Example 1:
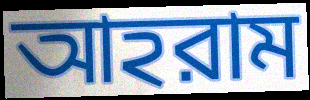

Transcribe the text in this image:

আহরাম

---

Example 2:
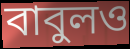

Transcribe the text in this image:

বাবুলও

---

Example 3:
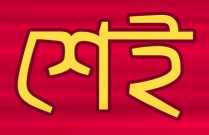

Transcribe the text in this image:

শেই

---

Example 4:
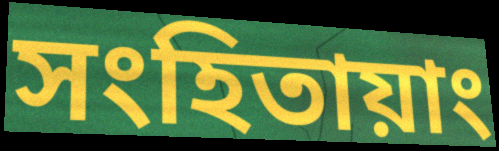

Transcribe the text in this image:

সংহিতায়াং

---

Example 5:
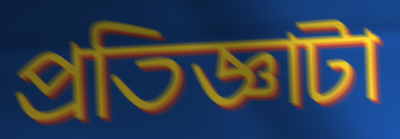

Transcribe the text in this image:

প্রতিজ্ঞাটা